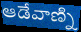
ఆడేవాణ్ని